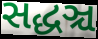
સદ્ધઞ્ચ